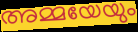
അമ്മയേയും